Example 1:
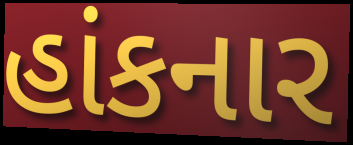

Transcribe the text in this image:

હાંકનાર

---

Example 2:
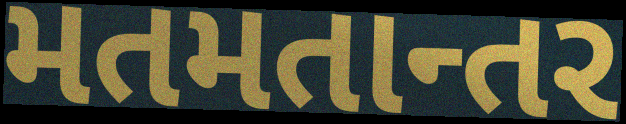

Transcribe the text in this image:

મતમતાન્તર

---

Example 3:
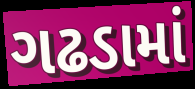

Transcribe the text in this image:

ગઢડામાં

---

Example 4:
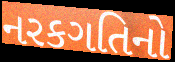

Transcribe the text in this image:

નરકગતિનો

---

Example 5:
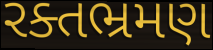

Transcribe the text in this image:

રક્તભ્રમણ